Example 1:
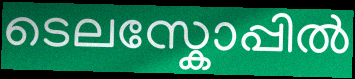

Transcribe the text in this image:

ടെലസ്കോപ്പിൽ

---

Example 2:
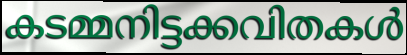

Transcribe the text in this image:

കടമ്മനിട്ടക്കവിതകൾ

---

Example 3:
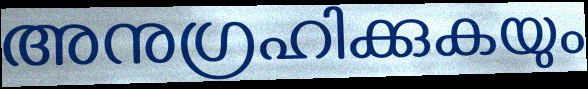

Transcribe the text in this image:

അനുഗ്രഹിക്കുകയും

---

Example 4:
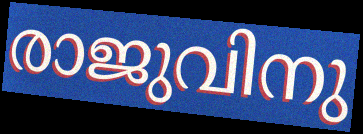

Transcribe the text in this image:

രാജുവിനു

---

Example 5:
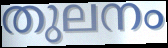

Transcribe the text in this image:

തുലനം